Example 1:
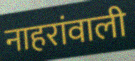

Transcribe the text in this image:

नाहरांवाली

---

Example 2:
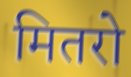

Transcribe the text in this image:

मितरो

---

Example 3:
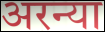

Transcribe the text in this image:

अरन्या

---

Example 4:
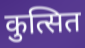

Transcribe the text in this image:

कुत्सित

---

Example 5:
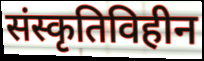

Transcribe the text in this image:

संस्कृतिविहीन